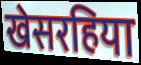
खेसरहिया